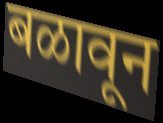
बळावून